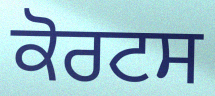
ਕੋਰਟਸ